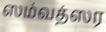
ஸம்வத்ஸர